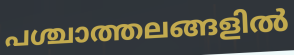
പശ്ചാത്തലങ്ങളിൽ